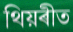
থিয়ৰীত